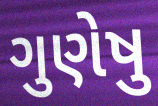
ગુણેષુ